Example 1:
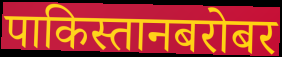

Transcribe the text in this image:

पाकिस्तानबरोबर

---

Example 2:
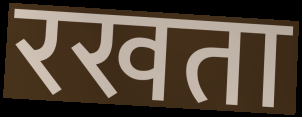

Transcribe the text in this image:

रखता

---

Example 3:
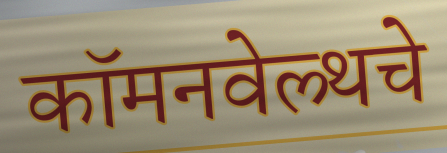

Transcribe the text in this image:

कॉमनवेल्थचे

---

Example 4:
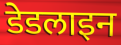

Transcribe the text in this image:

डेडलाइन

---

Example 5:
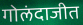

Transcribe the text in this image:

गोलंदाजीत